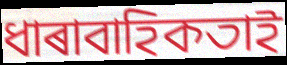
ধাৰাবাহিকতাই